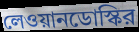
লেওয়ানডোস্কির